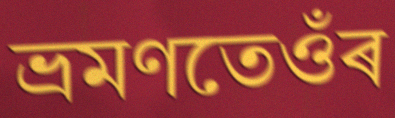
ভ্ৰমণতেওঁৰ